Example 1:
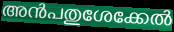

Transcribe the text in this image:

അൻപതുശേക്കേൽ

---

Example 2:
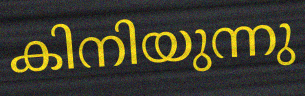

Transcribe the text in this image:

കിനിയുന്നു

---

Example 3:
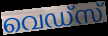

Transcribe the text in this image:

വെഡ്സ്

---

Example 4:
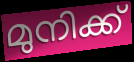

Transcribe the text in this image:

മുനിക്ക്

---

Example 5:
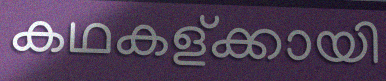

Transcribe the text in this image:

കഥകള്ക്കായി